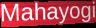
Mahayogi